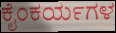
ಕೈಂಕರ್ಯಗಳ